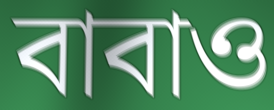
বাবাও